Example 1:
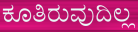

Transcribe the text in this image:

ಕೂತಿರುವುದಿಲ್ಲ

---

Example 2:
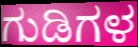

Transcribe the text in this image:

ಗುಡಿಗಳ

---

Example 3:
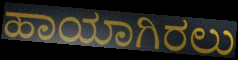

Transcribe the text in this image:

ಹಾಯಾಗಿರಲು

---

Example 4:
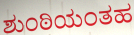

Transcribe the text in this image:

ಶುಂಠಿಯಂತಹ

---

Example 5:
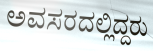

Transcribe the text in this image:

ಅವಸರದಲ್ಲಿದ್ದರು